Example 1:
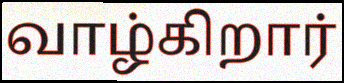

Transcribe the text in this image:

வாழ்கிறார்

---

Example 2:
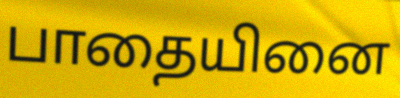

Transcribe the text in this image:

பாதையினை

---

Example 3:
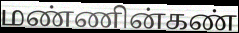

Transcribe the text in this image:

மண்ணின்கண்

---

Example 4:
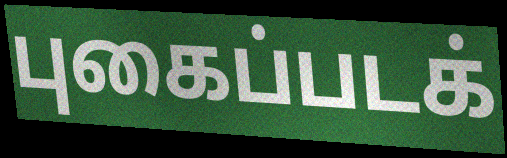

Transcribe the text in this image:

புகைப்படக்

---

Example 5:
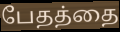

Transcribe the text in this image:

பேதத்தை